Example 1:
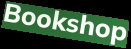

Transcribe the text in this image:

Bookshop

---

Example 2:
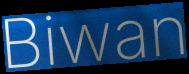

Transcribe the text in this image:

Biwan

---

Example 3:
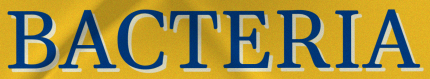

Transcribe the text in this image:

BACTERIA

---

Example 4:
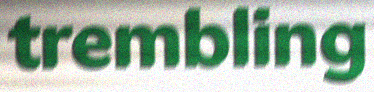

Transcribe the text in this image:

trembling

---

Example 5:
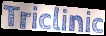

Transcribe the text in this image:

Triclinic